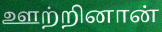
ஊற்றினான்